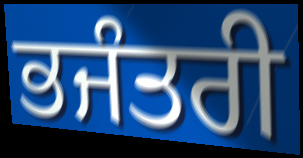
ਭਜੰਤਰੀ